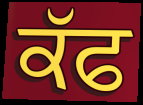
ਕੱਫ